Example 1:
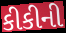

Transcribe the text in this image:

કીકીની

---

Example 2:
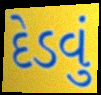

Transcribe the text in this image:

દેડવું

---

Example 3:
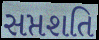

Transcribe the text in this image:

સપ્તશતિ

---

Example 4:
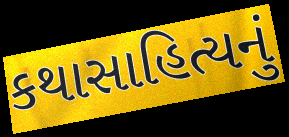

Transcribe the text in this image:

કથાસાહિત્યનું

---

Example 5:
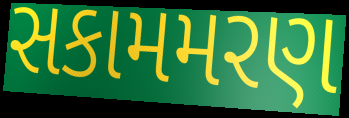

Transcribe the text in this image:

સકામમરણ